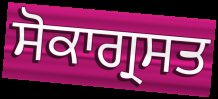
ਸੋਕਾਗ੍ਰਸਤ